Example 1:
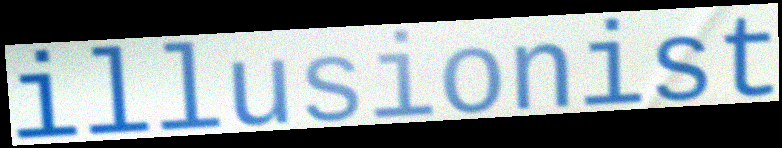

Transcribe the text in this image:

illusionist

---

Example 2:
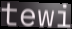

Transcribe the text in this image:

tewi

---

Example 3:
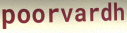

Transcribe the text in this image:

poorvardh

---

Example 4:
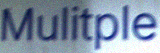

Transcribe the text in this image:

Mulitple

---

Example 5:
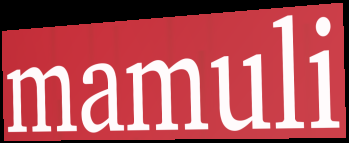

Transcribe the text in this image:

mamuli